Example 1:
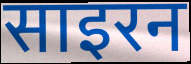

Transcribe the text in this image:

साइरन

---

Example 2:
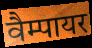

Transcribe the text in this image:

वैम्पायर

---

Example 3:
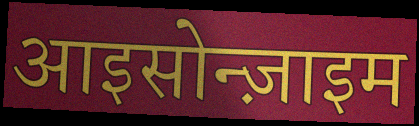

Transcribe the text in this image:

आइसोन्ज़ाइम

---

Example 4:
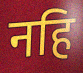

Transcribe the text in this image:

नहि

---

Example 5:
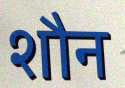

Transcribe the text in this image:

शौन